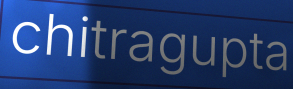
chitragupta